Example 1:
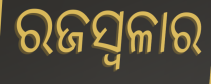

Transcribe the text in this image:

ରଜସ୍ୱଳାର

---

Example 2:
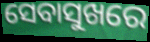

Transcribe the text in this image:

ସେବାସୁଖରେ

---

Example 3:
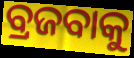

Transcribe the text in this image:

ବ୍ରଜବାକୁ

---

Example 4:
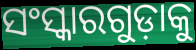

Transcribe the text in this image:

ସଂସ୍କାରଗୁଡ଼ାକୁ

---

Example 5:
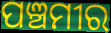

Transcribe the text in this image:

ପଞ୍ଚମୀର